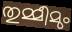
തുമ്മീമും